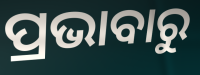
ପ୍ରଭାବାରୁ